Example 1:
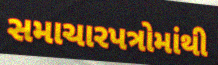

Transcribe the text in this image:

સમાચારપત્રોમાંથી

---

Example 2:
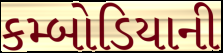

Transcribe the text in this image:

કમ્બોડિયાની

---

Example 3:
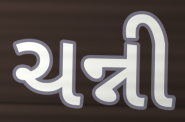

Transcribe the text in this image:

ચન્ની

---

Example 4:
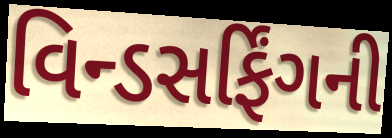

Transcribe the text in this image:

વિન્ડસર્ફિંગની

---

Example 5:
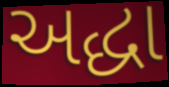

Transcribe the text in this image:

અદ્ધા